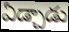
ఏడ్చాడు